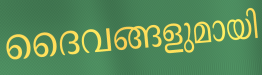
ദൈവങ്ങളുമായി